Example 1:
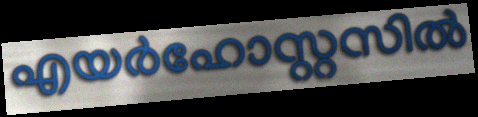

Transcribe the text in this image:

എയർഹോസ്റ്റസിൽ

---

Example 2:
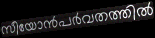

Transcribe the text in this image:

സീയോൻപർവതത്തിൽ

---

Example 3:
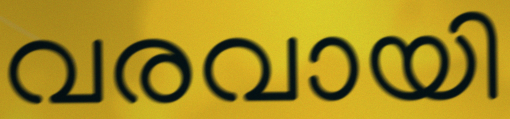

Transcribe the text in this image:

വരവായി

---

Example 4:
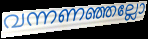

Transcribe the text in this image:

വന്നണഞ്ഞല്ലോ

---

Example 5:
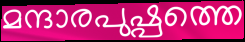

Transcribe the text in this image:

മന്ദാരപുഷ്പത്തെ